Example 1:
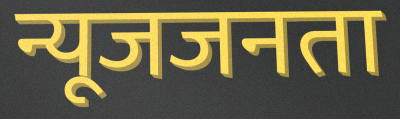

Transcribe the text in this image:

न्यूजजनता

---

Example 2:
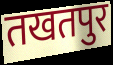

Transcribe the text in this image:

तखतपुर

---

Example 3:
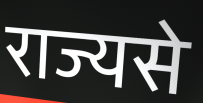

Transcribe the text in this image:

राज्यसे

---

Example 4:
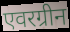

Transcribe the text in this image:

एवरग्रीन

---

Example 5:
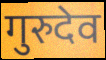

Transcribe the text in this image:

गुरुदेव